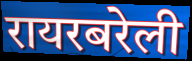
रायरबरेली